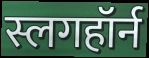
स्लगहॉर्न